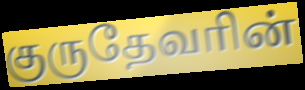
குருதேவரின்